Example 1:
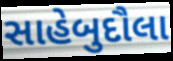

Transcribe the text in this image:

સાહેબુદૌલા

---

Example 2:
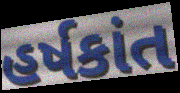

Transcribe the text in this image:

હર્ષકાંત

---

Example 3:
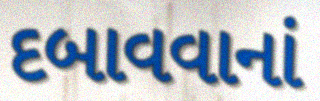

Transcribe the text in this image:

દબાવવાનાં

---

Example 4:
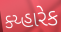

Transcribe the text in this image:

ક્ય્હારેક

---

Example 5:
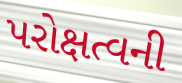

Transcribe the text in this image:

પરોક્ષત્વની